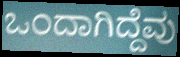
ಒಂದಾಗಿದ್ದೆವು